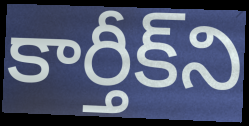
కార్తీక్‌ని